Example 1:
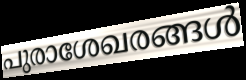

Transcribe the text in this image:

പുരാശേഖരങ്ങൾ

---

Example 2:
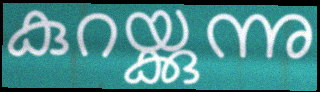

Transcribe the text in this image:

കുറയ്ക്കുന്നു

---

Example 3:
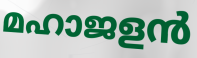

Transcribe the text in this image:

മഹാജളൻ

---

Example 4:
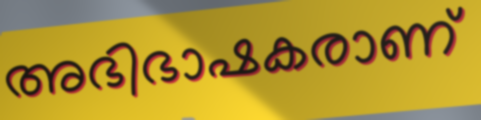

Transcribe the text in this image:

അഭിഭാഷകരാണ്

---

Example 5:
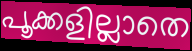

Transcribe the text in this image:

പൂക്കളില്ലാതെ